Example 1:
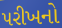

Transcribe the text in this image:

પરીખનો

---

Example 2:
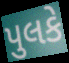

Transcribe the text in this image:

પુલકે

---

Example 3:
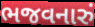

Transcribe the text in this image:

ભજવનારું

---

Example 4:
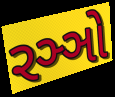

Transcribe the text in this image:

રઞ્ઞો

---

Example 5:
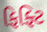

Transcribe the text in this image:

ફિફ્ટિ